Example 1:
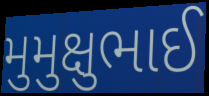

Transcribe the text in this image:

મુમુક્ષુભાઈ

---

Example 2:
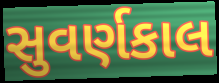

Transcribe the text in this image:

સુવર્ણકાલ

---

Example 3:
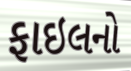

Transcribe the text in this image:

ફાઇલનો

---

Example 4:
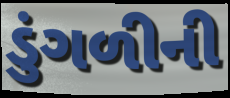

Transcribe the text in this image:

ડુંગળીની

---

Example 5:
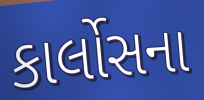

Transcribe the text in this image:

કાર્લોસના